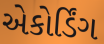
એકોર્ડિંગ